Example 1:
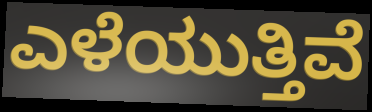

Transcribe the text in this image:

ಎಳೆಯುತ್ತಿವೆ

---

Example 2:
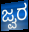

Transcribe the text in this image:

ಜ್ವರ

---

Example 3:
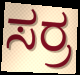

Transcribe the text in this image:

ಸರ್ರ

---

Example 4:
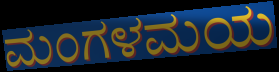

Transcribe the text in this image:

ಮಂಗಳಮಯ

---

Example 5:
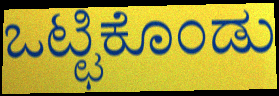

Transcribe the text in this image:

ಒಟ್ಟಿಕೊಂಡು